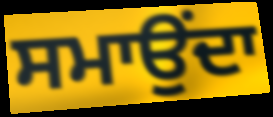
ਸਮਾਉਂਦਾ